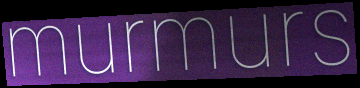
murmurs